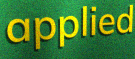
applied